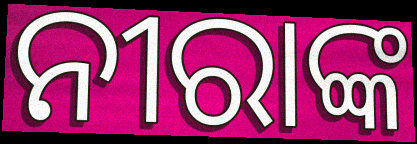
ନୀରାଙ୍କ